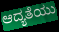
ಆದ್ಯತೆಯು